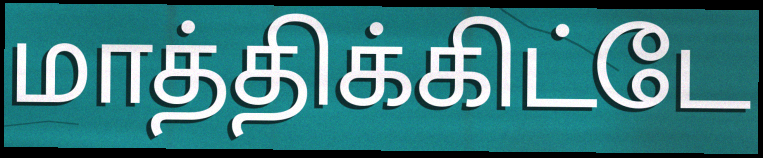
மாத்திக்கிட்டே